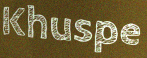
Khuspe